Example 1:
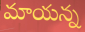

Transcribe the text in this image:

మాయన్న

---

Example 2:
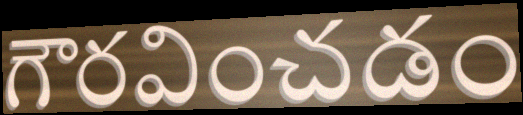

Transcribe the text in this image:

గౌరవించడం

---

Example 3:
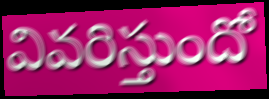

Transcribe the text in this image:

వివరిస్తుందో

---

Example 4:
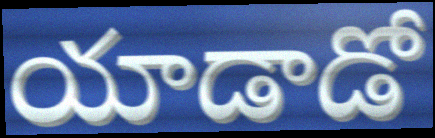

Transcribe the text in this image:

యాడాడో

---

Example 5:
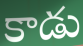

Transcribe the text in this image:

కాడు